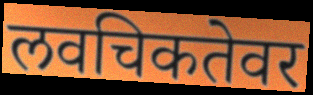
लवचिकतेवर